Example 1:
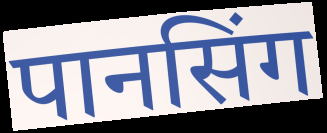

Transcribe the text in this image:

पानसिंग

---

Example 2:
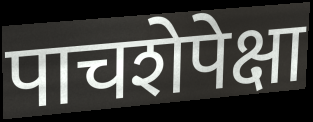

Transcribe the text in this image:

पाचशेपेक्षा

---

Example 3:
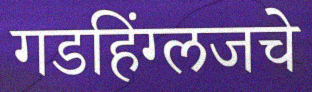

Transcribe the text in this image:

गडहिंग्लजचे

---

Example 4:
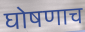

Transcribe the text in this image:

घोषणाच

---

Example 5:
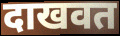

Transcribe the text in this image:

दाखवत